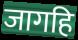
जागहि